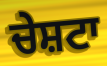
ਚੇਸ਼ਟਾ